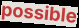
possible